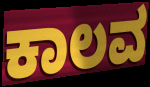
ಕಾಲವ